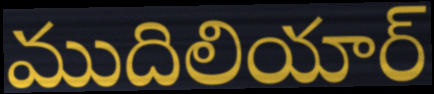
ముదిలియార్